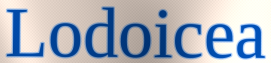
Lodoicea